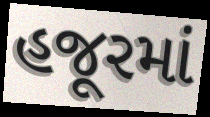
હજૂરમાં